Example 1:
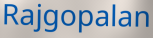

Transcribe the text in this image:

Rajgopalan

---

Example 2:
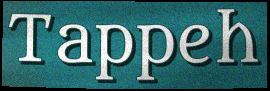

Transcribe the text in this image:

Tappeh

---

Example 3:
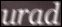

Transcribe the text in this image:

urad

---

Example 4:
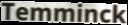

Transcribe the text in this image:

Temminck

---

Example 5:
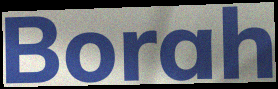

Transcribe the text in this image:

Borah